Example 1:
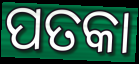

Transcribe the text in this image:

ପତକା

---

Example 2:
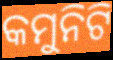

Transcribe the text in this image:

କମୁନିଟି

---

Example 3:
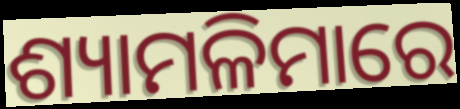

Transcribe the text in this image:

ଶ୍ୟାମଳିମାରେ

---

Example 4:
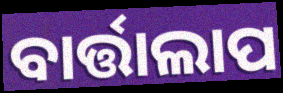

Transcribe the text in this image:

ବାର୍ତ୍ତାଲାପ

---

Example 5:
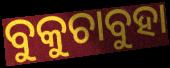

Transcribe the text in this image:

ବୁକୁଚାବୁହା